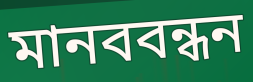
মানববন্ধন